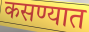
कसण्यात